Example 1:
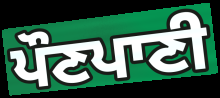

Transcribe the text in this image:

ਪੌਣਪਾਣੀ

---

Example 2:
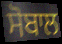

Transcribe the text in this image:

ਸੋਬਾਲ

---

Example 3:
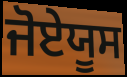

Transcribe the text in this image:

ਜੋਏਯੂਸ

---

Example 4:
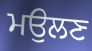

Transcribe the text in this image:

ਮਉਲਣ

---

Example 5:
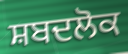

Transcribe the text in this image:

ਸ਼ਬਦਲੋਕ